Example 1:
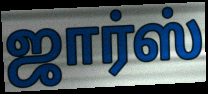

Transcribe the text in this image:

ஜார்ஸ்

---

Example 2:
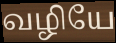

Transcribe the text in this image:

வழியே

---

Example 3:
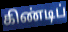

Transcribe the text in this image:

கிண்டிப்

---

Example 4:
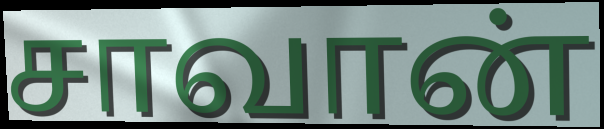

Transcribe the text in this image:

சாவான்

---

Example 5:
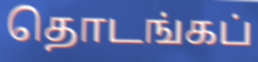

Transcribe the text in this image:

தொடங்கப்